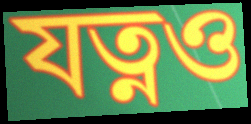
যত্নও